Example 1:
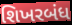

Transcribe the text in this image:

શિખરબંધ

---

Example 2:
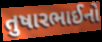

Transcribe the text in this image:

તુષારભાઈનો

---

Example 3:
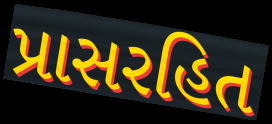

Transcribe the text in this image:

પ્રાસરહિત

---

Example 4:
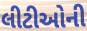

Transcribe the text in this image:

લીટીઓની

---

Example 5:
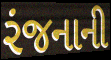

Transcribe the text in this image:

રંજનાની